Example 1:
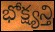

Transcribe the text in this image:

భోక్ష్యన్తి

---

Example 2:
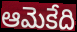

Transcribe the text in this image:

ఆమెకేది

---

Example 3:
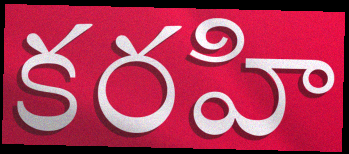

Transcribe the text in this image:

కరహి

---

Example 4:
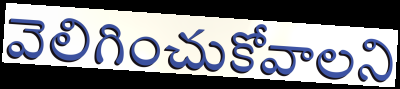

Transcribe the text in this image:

వెలిగించుకోవాలని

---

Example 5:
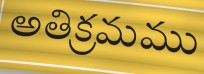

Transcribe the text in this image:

అతిక్రమము